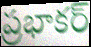
ప్రభాకర్